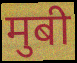
मुबी